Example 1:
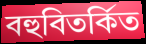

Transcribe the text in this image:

বহুবিতর্কিত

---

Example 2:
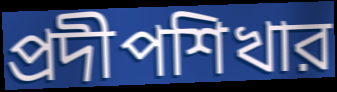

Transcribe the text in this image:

প্রদীপশিখার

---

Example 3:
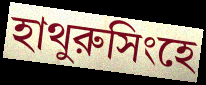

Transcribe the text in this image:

হাথুরুসিংহে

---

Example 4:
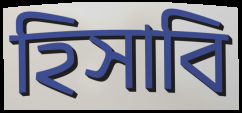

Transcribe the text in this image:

হিসাবি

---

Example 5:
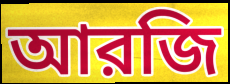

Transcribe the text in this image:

আরজি